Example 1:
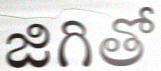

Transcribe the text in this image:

జిగితో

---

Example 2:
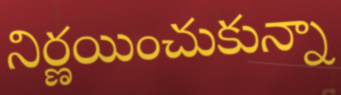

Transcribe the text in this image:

నిర్ణయించుకున్నా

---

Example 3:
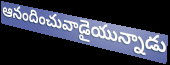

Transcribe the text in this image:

ఆనందించువాడైయున్నాడు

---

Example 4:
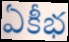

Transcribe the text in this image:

ఏకీభ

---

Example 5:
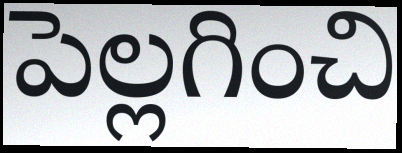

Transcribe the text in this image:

పెల్లగించి